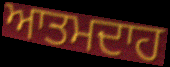
ਆਤਮਦਾਹ